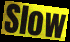
Slow